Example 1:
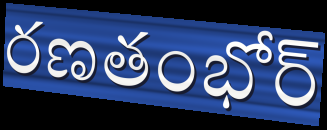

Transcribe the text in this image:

రణతంభోర్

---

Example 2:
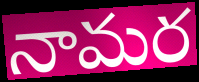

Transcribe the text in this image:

నామర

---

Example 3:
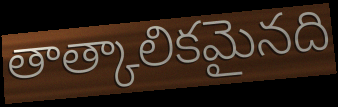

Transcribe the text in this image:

తాత్కాలికమైనది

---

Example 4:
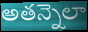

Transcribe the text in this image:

అతన్నెలా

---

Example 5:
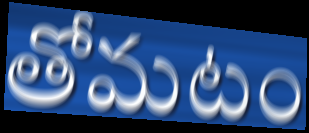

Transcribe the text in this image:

తోమటం